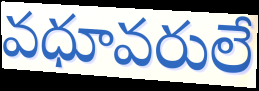
వధూవరులే